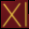
Xl